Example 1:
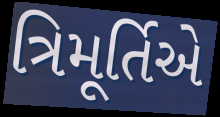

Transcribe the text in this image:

ત્રિમૂર્તિએ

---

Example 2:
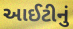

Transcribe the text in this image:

આઈટીનું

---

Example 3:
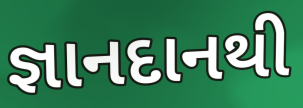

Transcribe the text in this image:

જ્ઞાનદાનથી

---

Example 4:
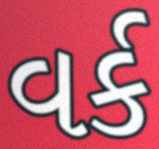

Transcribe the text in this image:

વર્ક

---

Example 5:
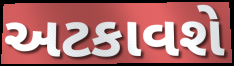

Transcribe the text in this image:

અટકાવશે